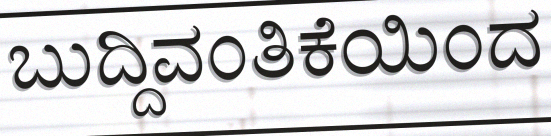
ಬುದ್ದಿವಂತಿಕೆಯಿಂದ